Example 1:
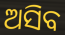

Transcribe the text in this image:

ଅସିବ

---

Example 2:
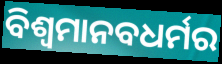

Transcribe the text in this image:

ବିଶ୍ବମାନବଧର୍ମର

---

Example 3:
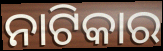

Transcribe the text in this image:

ନାଟିକାର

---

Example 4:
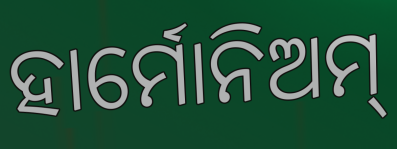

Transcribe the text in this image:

ହାର୍ମୋନିଅମ୍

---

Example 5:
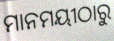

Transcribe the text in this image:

ମାନମୟୀଠାରୁ